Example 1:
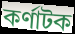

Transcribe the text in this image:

কর্ণাটক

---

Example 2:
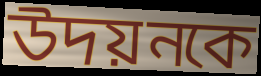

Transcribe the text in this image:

উদয়নকে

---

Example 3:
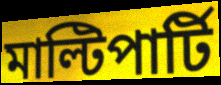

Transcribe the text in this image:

মাল্টিপার্টি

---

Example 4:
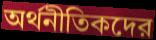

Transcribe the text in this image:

অর্থনীতিকদের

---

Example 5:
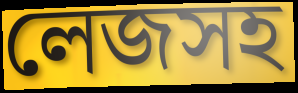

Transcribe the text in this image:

লেজসহ